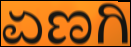
ಏಣಗಿ